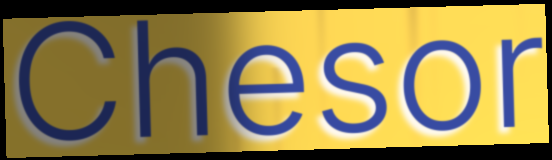
Chesor